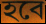
হবে